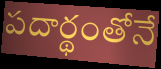
పదార్థంతోనే